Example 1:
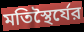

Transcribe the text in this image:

মতিস্থৈর্যের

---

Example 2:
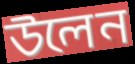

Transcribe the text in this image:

উলেন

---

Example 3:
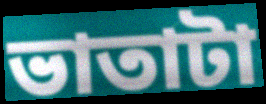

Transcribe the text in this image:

ভাতাটা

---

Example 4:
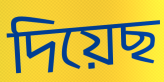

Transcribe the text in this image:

দিয়েছ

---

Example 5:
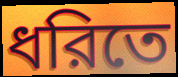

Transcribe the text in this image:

ধরিতে